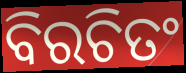
ବିରଚିତଂ